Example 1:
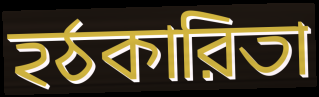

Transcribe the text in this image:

হঠকারিতা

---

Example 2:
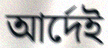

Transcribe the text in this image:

আর্দেই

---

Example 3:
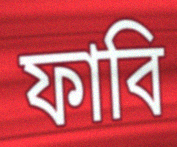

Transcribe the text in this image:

ফাবি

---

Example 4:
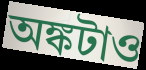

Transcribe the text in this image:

অঙ্কটাও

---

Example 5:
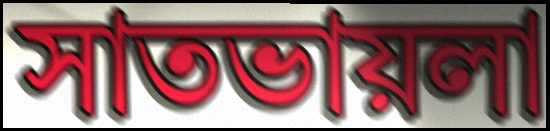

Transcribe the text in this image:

সাতভায়লা